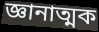
জ্ঞানাত্মক